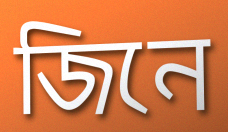
জিনে